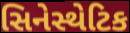
સિનેસ્થેટિક